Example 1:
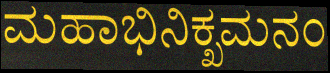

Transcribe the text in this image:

ಮಹಾಭಿನಿಕ್ಖಮನಂ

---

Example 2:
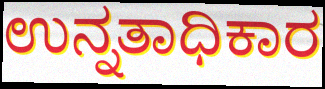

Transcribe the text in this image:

ಉನ್ನತಾಧಿಕಾರ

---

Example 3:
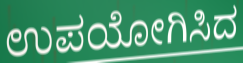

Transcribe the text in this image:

ಉಪಯೋಗಿಸಿದ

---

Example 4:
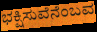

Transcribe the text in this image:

ಭಕ್ಷಿಸುವೆನೆಂಬವ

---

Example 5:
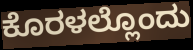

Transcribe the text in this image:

ಕೊರಳಲ್ಲೊಂದು